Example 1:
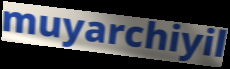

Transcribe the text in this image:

muyarchiyil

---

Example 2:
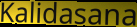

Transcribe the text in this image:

Kalidasana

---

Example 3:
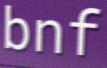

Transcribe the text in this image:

bnf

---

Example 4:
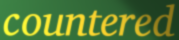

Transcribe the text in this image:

countered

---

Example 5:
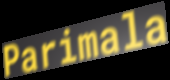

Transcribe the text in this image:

Parimala